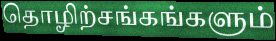
தொழிற்சங்கங்களும்